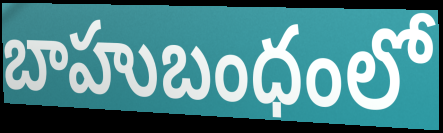
బాహుబంధంలో